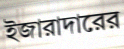
ইজারাদারের